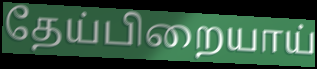
தேய்பிறையாய்